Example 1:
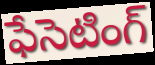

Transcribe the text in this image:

ఫేసెటింగ్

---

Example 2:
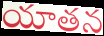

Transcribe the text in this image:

యాతన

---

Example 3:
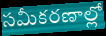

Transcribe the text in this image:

సమీకరణాల్లో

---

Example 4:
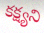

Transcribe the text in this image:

కక్ష్యని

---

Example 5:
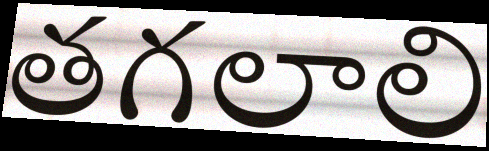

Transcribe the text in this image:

తగలాలి